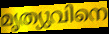
മൃത്യുവിനെ